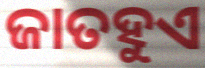
ଜାତହୁଏ